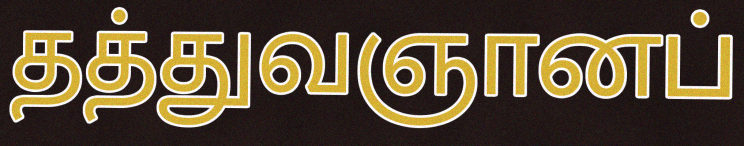
தத்துவஞானப்